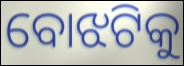
ବୋଝଟିକୁ